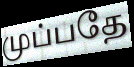
முப்பதே